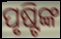
ପୃଷ୍ଟିଙ୍କ